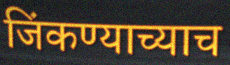
जिंकण्याच्याच